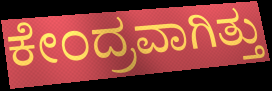
ಕೇಂದ್ರವಾಗಿತ್ತು